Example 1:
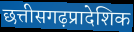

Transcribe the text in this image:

छत्तीसगढ़प्रादेशिक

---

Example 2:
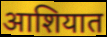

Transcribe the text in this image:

आशियात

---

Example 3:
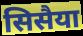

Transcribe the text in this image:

सिसैया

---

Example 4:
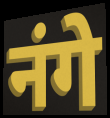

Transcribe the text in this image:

नंगे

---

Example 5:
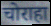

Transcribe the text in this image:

चोराहा